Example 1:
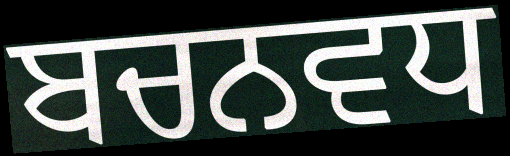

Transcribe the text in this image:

ਬਚਨਵਧ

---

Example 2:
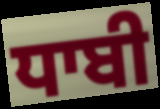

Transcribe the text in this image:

ਧਾਬੀ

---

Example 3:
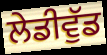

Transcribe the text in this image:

ਲੇਡੀਵੁੱਡ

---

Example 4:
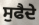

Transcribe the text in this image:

ਸੁਫੈਦੇ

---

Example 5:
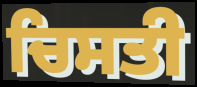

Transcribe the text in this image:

ਚਿਸਤੀ